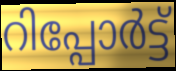
റിപ്പോർട്ട്